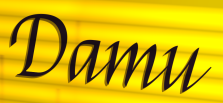
Damu